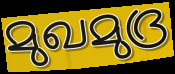
മുഖമുദ്ര